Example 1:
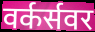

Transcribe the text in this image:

वर्कर्सवर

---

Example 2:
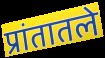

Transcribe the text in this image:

प्रांतातले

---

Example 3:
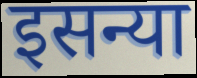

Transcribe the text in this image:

इसन्या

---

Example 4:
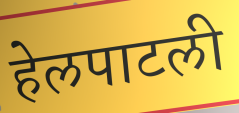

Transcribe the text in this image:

हेलपाटली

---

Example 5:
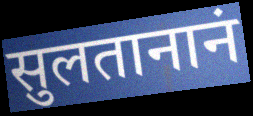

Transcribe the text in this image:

सुलतानानं